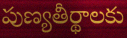
పుణ్యతీర్థాలకు